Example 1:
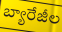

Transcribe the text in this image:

బ్యారేజీల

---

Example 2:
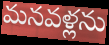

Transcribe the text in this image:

మనవళ్లను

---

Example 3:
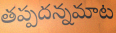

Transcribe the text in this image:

తప్పదన్నమాట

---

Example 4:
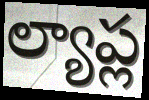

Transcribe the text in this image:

ల్యాప్ల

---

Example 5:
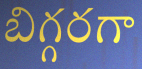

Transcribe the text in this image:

బిగ్గరగా